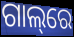
ଗାଲ୍‌ରେ